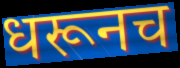
धरूनच